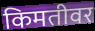
किमतीवर